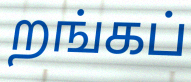
றங்கப்